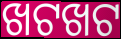
ଖଟଖଟ